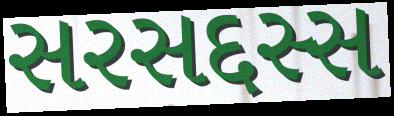
સરસદ્દસ્સ